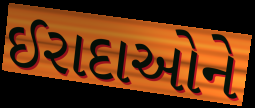
ઈરાદાઓને